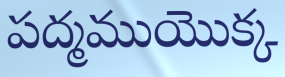
పద్మముయొక్క